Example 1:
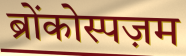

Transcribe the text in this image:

ब्रोंकोस्पज़म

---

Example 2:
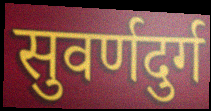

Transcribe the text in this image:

सुवर्णदुर्ग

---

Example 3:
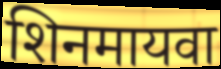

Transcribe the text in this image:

शिनमायवा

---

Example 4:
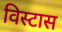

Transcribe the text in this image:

विस्टास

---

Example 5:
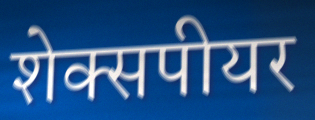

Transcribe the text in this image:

शेक्सपीयर